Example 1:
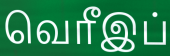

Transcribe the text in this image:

வெரீஇப்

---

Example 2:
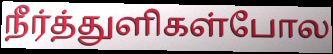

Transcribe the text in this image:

நீர்த்துளிகள்போல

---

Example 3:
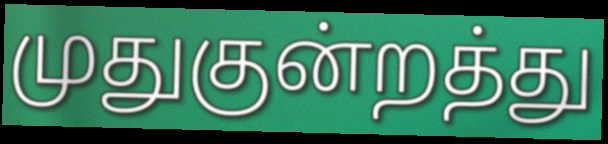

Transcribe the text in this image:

முதுகுன்றத்து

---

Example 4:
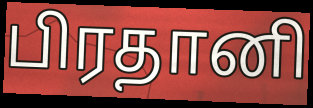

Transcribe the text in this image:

பிரதானி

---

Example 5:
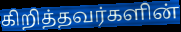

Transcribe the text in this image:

கிறித்தவர்களின்